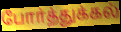
போர்த்துக்கல்